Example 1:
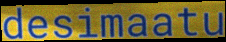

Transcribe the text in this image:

desimaatu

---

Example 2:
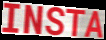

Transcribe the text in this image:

INSTA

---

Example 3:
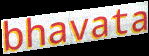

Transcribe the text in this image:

bhavata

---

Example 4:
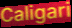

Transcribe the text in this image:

Caligari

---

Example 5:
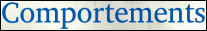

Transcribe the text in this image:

Comportements